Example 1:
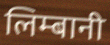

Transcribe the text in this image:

लिम्बानी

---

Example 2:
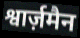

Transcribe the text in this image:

श्वार्ज़मैन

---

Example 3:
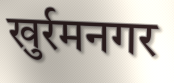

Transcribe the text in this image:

खुर्रमनगर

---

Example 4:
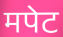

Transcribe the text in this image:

मपेट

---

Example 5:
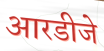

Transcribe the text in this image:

आरडीजे